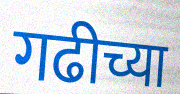
गढीच्या